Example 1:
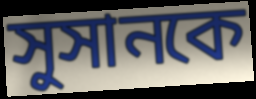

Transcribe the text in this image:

সুসানকে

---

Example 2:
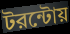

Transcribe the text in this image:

টরন্টোয়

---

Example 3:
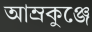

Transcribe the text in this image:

আম্রকুঞ্জে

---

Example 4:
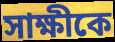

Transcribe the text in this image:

সাক্ষীকে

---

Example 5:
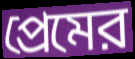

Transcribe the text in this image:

প্রেমের